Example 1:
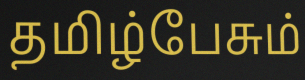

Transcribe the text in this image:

தமிழ்பேசும்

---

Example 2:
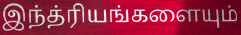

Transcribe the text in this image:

இந்த்ரியங்களையும்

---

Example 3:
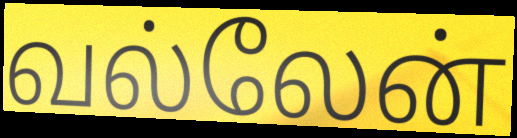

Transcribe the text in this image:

வல்லேன்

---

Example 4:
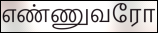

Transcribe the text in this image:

எண்ணுவரோ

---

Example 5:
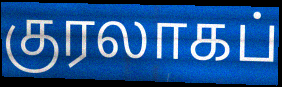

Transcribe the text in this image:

குரலாகப்